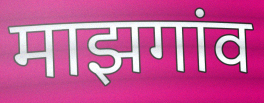
माझगांव